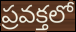
ప్రవక్తలో